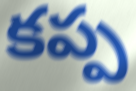
కప్ప